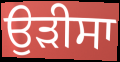
ਉੜੀਸਾ